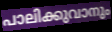
പാലിക്കുവാനും